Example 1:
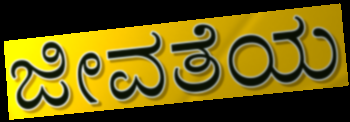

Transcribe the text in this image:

ಜೀವತೆಯ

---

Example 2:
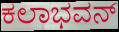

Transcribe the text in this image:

ಕಲಾಭವನ್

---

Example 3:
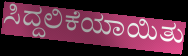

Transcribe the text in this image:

ಸಿದ್ದಲಿಕೆಯಾಯಿತು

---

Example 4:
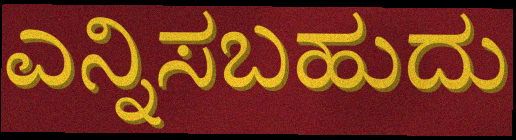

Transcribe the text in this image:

ಎನ್ನಿಸಬಹುದು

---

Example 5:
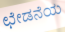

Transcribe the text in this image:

ಛೇಡನೆಯ